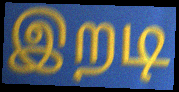
இறடி